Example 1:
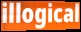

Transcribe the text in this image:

illogical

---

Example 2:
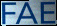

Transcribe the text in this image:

FAE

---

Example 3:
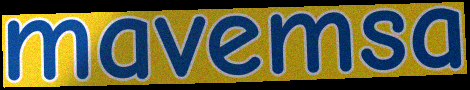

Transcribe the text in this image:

mavemsa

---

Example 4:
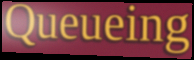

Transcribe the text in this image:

Queueing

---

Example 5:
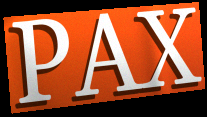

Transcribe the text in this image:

PAX